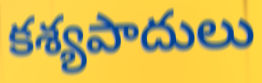
కశ్యపాదులు